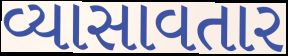
વ્યાસાવતાર